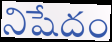
నిషేదం